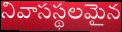
నివాసస్థలమైన